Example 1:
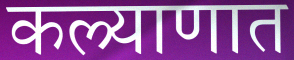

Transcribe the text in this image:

कल्याणात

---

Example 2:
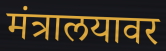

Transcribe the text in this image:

मंत्रालयावर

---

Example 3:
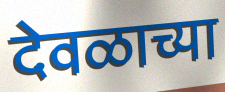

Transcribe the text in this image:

देवळाच्या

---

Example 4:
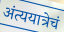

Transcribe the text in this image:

अंत्ययात्रेचं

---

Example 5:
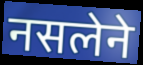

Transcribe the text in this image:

नसलेने